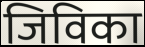
जिविका